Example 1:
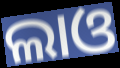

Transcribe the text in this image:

ଲାଓ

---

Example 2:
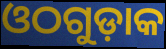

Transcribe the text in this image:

ଓଠଗୁଡ଼ାକ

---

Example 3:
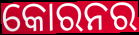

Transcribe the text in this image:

କୋରନର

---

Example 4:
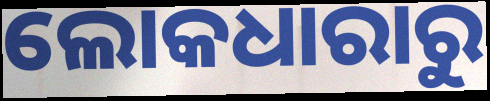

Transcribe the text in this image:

ଲୋକଧାରାରୁ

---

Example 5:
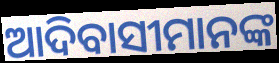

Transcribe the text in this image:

ଆଦିବାସୀମାନଙ୍କ